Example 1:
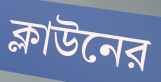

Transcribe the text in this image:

ক্লাউনের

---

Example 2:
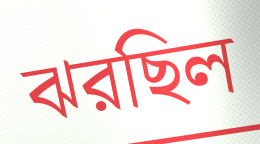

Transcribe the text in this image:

ঝরছিল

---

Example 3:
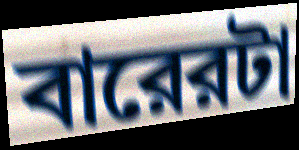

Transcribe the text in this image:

বারেরটা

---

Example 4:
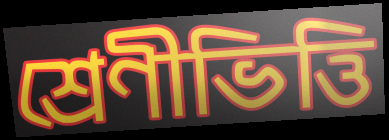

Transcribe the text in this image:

শ্রেণীভিত্তি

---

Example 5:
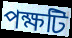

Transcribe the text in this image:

পক্ষটি